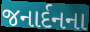
જનાર્દનના